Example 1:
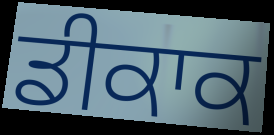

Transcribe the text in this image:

ਡੀਕਾਕ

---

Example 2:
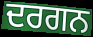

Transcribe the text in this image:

ਦਰਗਨ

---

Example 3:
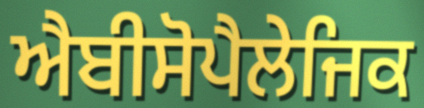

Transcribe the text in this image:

ਐਬੀਸੋਪੈਲੇਜਿਕ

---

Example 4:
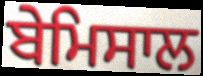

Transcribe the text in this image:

ਬੇਮਿਸਾਲ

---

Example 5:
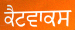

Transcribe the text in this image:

ਕੈਟਵਾਕਸ